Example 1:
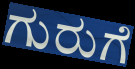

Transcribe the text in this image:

ಗುರುಗೆ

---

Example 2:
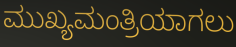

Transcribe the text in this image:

ಮುಖ್ಯಮಂತ್ರಿಯಾಗಲು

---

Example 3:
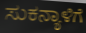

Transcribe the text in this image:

ಸುಕನ್ಯಾಳಿಗೆ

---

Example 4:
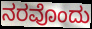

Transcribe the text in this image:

ನರವೊಂದು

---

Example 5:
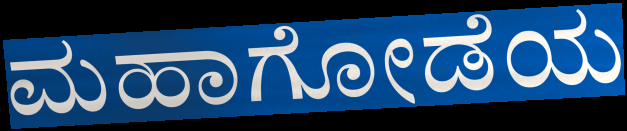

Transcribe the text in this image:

ಮಹಾಗೋಡೆಯ